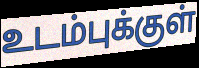
உடம்புக்குள்